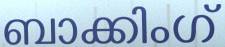
ബാക്കിംഗ്